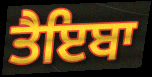
ਤੈਇਬਾ